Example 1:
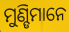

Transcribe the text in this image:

ମୁଣ୍ଡିମାନେ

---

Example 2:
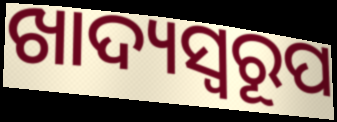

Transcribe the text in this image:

ଖାଦ୍ୟସ୍ୱରୂପ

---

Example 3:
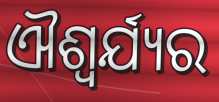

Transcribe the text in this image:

ଐଶ୍ୱର୍ଯ୍ୟର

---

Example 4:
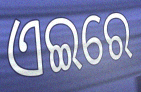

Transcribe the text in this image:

ଏଇରେ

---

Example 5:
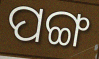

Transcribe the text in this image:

ପଙ୍ଗ